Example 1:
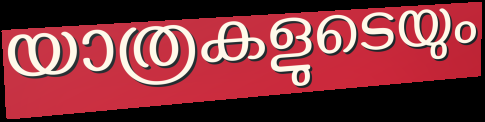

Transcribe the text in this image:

യാത്രകളുടെയും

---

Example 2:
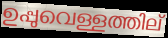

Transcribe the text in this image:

ഉപ്പുവെള്ളത്തില്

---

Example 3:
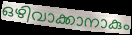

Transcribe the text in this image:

ഒഴിവാക്കാനാകും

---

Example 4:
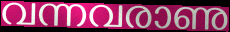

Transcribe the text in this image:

വന്നവരാണു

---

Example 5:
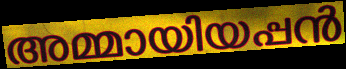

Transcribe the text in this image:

അമ്മായിയപ്പൻ